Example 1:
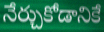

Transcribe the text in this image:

నేర్చుకోడానికే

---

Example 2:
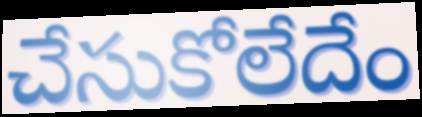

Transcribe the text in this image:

చేసుకోలేదేం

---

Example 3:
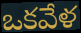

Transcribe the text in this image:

ఒకవేళ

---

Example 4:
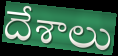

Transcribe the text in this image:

దేశాలు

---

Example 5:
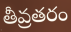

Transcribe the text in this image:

తీవ్రతరం